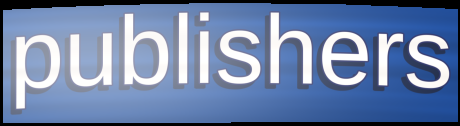
publishers